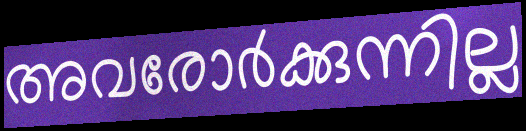
അവരോർക്കുന്നില്ല